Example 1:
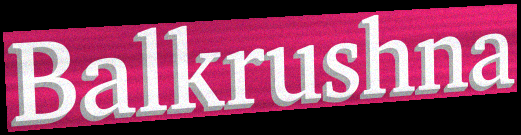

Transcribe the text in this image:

Balkrushna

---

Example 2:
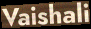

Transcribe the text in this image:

Vaishali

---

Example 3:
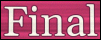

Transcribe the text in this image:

Final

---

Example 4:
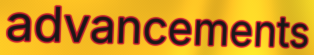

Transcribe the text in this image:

advancements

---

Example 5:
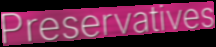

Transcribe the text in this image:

Preservatives